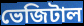
ভেজিটাল